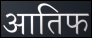
आतिफ